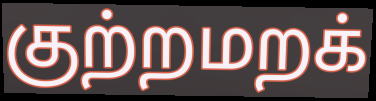
குற்றமறக்